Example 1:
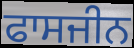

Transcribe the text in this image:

ਫਾਸਜੀਨ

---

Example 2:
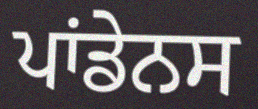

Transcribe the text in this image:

ਪਾਂਡੇਨਸ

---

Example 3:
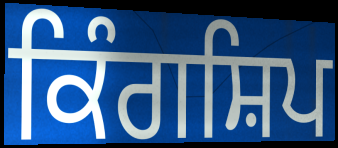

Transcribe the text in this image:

ਕਿੰਗਸ਼ਿਪ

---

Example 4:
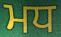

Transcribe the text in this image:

ਮਧ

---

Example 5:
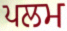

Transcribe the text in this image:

ਪਲਮ